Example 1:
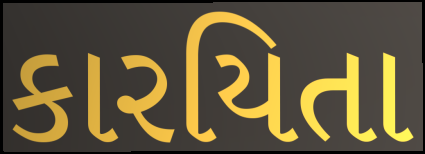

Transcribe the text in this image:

કારયિતા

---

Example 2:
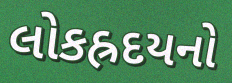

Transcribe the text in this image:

લોકહ્રદયનો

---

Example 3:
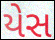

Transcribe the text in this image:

યેસ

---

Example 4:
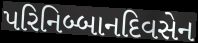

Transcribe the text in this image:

પરિનિબ્બાનદિવસેન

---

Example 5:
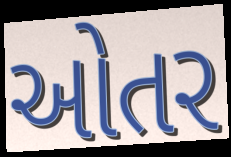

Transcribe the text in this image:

ઓતર